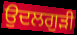
ਉਦਲਗੁੜੀ